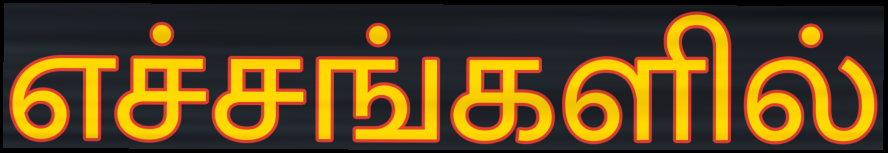
எச்சங்களில்